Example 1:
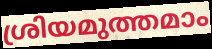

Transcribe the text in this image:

ശ്രിയമുത്തമാം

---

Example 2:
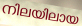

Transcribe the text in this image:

നിലയിലായ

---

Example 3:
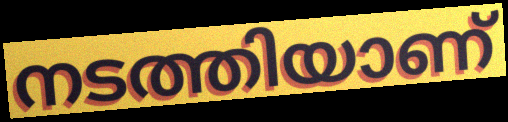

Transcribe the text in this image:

നടത്തിയാണ്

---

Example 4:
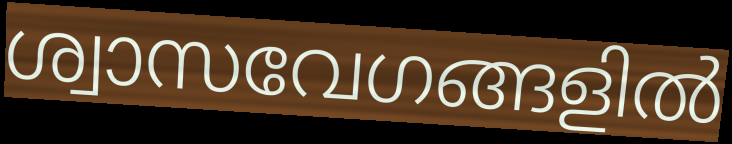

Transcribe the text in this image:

ശ്വാസവേഗങ്ങളിൽ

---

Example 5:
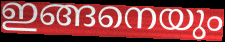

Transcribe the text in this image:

ഇങ്ങനെയും